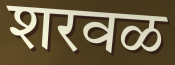
शरवळ